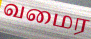
வமைர